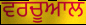
ਵਰਚੂਆਲ